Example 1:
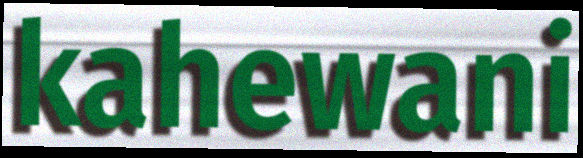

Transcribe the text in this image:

kahewani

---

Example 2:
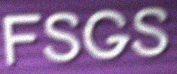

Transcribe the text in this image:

FSGS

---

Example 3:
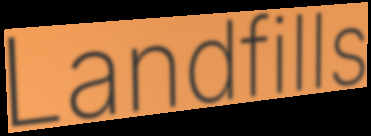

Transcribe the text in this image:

Landfills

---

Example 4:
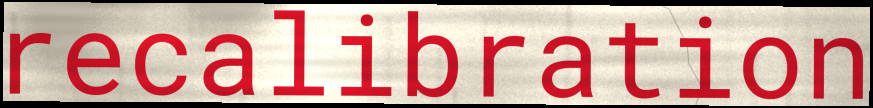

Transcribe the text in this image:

recalibration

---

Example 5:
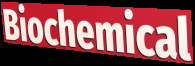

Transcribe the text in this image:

Biochemical